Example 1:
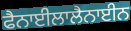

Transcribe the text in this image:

ਫੈਨਾਈਲਾਲੈਨਾਈਨ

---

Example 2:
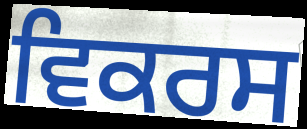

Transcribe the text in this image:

ਵਿਕਰਸ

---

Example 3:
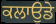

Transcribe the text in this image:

ਕਲਾਉਡੇ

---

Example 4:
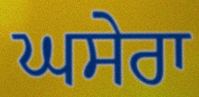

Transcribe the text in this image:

ਘਸੇਰਾ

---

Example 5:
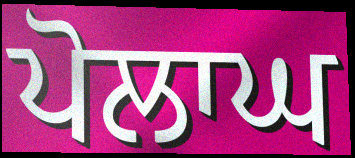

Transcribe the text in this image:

ਪੋਲਾਘ